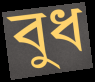
বুধ